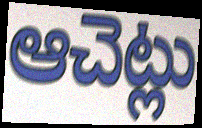
ఆచెట్లు